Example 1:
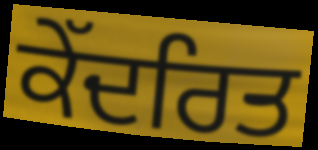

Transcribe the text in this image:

ਕੇੱਦਰਿਤ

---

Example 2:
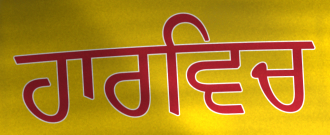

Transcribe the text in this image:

ਹਾਰਵਿਚ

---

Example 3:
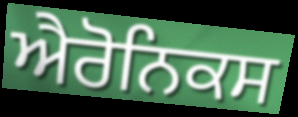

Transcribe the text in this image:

ਐਰੋਨਿਕਸ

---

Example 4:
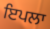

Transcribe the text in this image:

ਇਪਲਾ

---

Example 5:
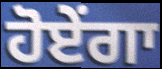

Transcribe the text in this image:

ਹੋਏਂਗਾ